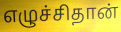
எழுச்சிதான்